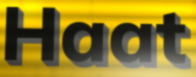
Haat